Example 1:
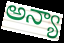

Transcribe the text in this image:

అన్యా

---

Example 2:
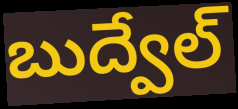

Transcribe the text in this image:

బుద్వేల్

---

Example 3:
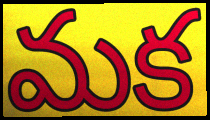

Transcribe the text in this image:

మక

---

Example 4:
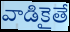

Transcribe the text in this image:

వాడికైతే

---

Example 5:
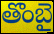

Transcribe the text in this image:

తొంబై